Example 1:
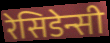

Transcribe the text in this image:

रेसिडेन्सी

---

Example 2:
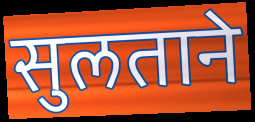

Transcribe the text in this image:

सुलताने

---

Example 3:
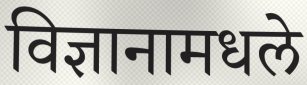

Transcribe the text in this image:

विज्ञानामधले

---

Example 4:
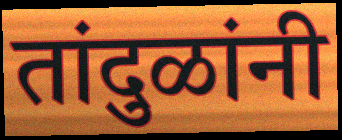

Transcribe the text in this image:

तांदुळांनी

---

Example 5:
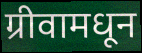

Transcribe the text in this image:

ग्रीवामधून